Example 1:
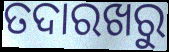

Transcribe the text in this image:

ତଦାରଖରୁ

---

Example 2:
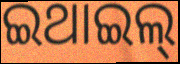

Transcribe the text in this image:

ଇଥାଇଲ୍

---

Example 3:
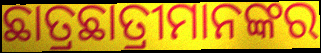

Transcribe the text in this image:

ଛାତ୍ରଛାତ୍ରୀମାନଙ୍କର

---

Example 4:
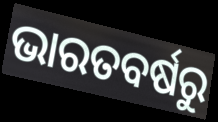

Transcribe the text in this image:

ଭାରତବର୍ଷରୁ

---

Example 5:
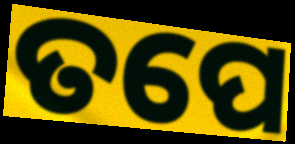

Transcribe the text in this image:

ତପେ